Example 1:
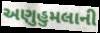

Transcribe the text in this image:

અણુહુમલાની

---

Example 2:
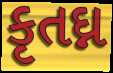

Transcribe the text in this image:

કૃતઘ્ન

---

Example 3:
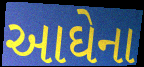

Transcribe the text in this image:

આઘેના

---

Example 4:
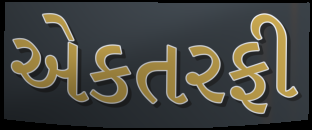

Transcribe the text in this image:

એકતરફી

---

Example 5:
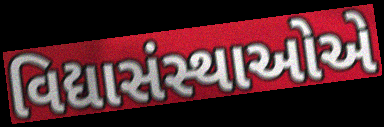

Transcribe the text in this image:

વિદ્યાસંસ્થાઓએ